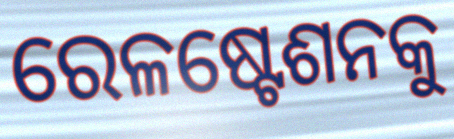
ରେଳଷ୍ଟେଶନକୁ